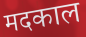
मदकाल